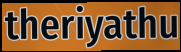
theriyathu